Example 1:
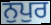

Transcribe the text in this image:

ਨੁਪੁਰ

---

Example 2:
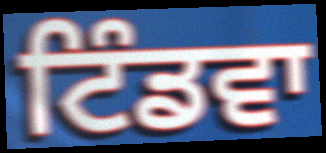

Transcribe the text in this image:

ਟਿੰਡਵਾ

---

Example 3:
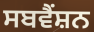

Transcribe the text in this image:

ਸਬਵੈਂਸ਼ਨ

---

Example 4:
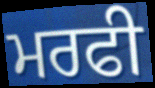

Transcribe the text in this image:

ਮਰਫੀ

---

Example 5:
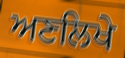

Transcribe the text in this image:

ਅਣਲਿਖੇ